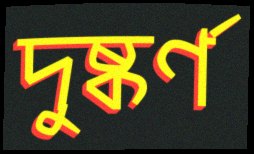
দুষ্কর্ণ